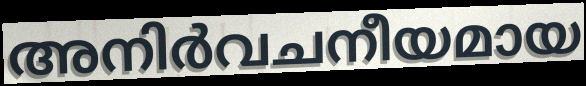
അനിർവചനീയമായ